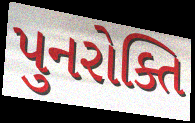
પુનરોક્તિ